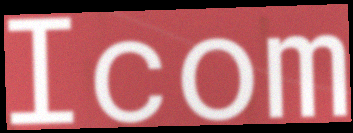
Icom